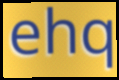
ehq